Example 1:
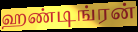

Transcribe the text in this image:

ஹண்டிங்ரன்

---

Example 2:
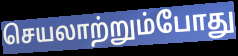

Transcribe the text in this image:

செயலாற்றும்போது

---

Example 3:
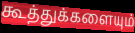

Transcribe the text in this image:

கூத்துக்களையும்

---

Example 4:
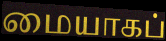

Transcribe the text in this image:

மையாகப்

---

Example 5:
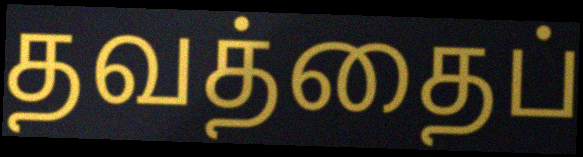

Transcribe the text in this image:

தவத்தைப்